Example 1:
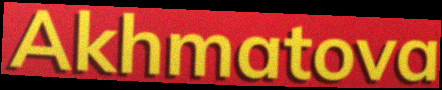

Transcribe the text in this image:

Akhmatova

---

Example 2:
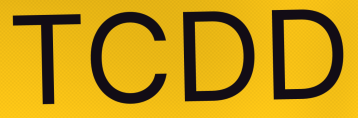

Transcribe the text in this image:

TCDD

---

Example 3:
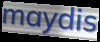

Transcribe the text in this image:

maydis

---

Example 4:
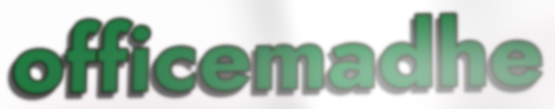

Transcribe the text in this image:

officemadhe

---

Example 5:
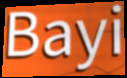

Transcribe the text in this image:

Bayi